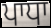
ਪਾਧਾ